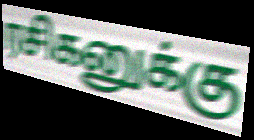
ரசிகனுக்கு